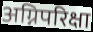
अग्निपरिक्षा